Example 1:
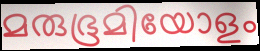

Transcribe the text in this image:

മരുഭൂമിയോളം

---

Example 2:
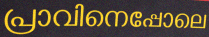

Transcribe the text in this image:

പ്രാവിനെപ്പോലെ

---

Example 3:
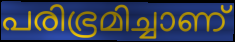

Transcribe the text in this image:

പരിഭ്രമിച്ചാണ്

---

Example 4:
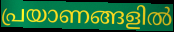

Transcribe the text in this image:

പ്രയാണങ്ങളിൽ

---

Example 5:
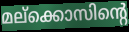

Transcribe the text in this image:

മല്ക്കൊസിന്റെ